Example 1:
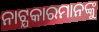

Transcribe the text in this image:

ନାଟ୍ଯକାରମାନଙ୍କୁ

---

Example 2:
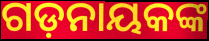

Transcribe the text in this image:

ଗଡ଼ନାୟକଙ୍କ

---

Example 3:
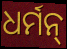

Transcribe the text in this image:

ଧର୍ମନ୍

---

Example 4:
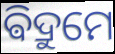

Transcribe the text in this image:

ଵିଦ୍ରୁମେ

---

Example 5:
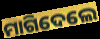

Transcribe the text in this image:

ମାଗିଦେଲେ